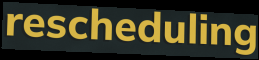
rescheduling